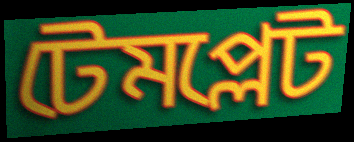
টেমপ্লেট